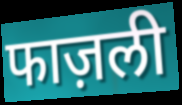
फाज़ली